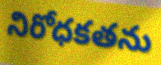
నిరోధకతను